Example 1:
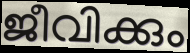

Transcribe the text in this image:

ജീവിക്കും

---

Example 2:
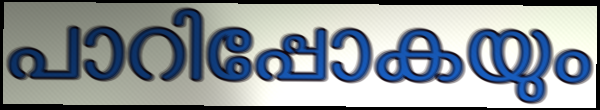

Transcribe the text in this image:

പാറിപ്പോകയും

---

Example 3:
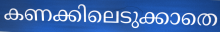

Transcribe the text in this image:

കണക്കിലെടുക്കാതെ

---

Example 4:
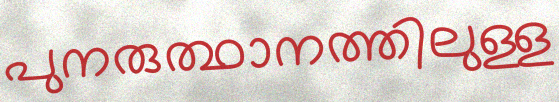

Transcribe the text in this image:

പുനരുത്ഥാനത്തിലുള്ള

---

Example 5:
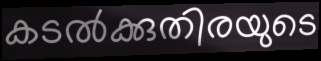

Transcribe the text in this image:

കടൽക്കുതിരയുടെ